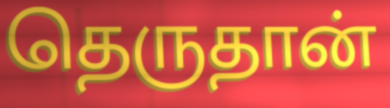
தெருதான்